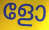
ളോ